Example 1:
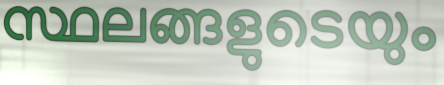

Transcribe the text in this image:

സ്ഥലങ്ങളുടെയും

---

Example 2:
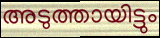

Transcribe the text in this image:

അടുത്തായിട്ടും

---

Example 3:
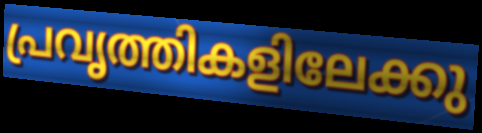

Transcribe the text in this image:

പ്രവൃത്തികളിലേക്കു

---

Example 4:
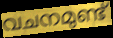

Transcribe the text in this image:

വചനമുണ്ട്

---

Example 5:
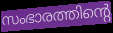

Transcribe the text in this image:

സംഭാരത്തിന്റെ